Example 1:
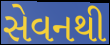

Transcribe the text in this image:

સેવનથી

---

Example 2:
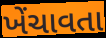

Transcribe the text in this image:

ખેંચાવતા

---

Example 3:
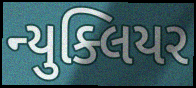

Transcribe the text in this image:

ન્યુક્લિયર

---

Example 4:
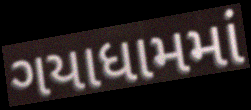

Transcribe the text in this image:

ગયાધામમાં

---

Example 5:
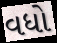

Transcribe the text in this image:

વધો